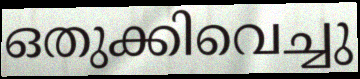
ഒതുക്കിവെച്ചു